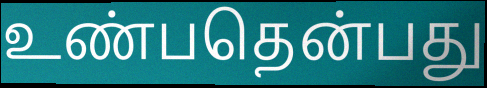
உண்பதென்பது